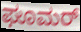
ಘೂಮರ್